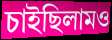
চাইছিলামও